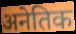
अनेतिक